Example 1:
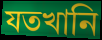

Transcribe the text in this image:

যতখানি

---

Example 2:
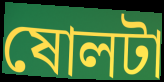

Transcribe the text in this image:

ষোলটা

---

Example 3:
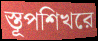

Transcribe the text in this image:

স্তূপশিখরে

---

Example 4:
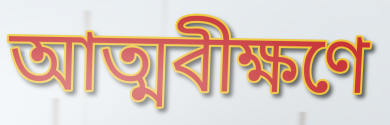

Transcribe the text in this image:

আত্মবীক্ষণে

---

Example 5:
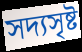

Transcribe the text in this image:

সদ্যসৃষ্ট